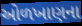
ઓળખાણના